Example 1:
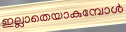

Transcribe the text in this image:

ഇല്ലാതെയാകുമ്പോൾ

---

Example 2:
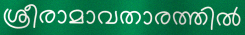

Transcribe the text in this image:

ശ്രീരാമാവതാരത്തിൽ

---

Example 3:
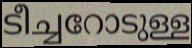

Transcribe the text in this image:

ടീച്ചറോടുള്ള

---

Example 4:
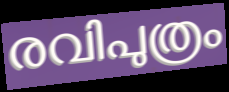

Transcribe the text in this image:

രവിപുത്രം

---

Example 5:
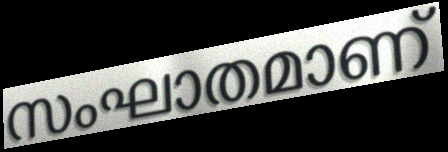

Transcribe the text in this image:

സംഘാതമാണ്